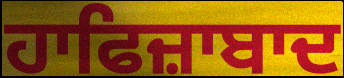
ਹਾਫਿਜ਼ਾਬਾਦ